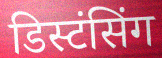
डिस्टंसिंग